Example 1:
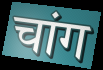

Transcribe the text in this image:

चांग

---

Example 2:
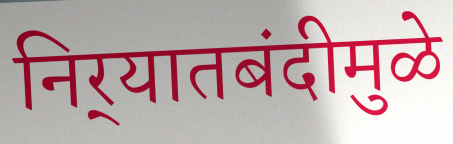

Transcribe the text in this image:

निर्यातबंदीमुळे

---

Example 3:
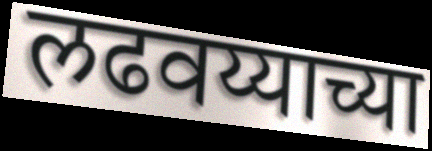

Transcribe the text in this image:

लढवय्याच्या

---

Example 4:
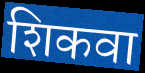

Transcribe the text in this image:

शिकवा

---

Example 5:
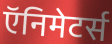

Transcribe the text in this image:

ऍनिमेटर्स